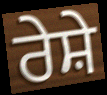
ਰੇਸ਼ੇ